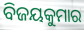
ବିଜୟକୁମାର